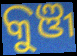
କୁଞ୍ଜ